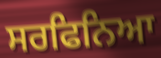
ਸਰਫਿਨਿਆ